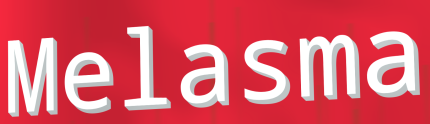
Melasma